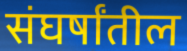
संघर्षांतील